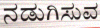
ನಡುಗಿಸುವ